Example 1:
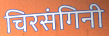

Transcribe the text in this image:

चिरसंगिनी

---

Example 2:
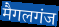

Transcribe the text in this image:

मैगलगंज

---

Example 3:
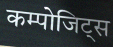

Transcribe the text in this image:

कम्पोजिट्स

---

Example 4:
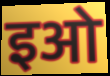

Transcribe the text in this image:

इओ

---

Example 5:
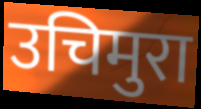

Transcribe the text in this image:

उचिमुरा